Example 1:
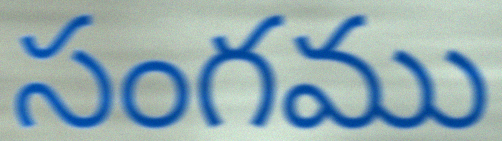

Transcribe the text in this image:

సంగము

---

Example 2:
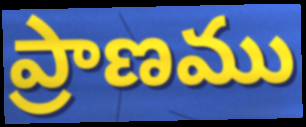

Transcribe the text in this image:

ప్రాణము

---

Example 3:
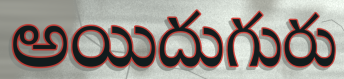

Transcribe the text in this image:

అయిదుగురు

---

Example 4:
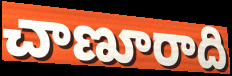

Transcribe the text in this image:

చాణూరాది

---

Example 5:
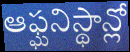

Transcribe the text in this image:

ఆఫ్ఘనిస్థాన్లో